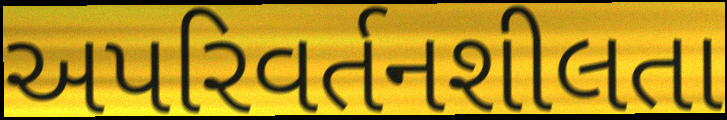
અપરિવર્તનશીલતા